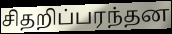
சிதறிப்பரந்தன